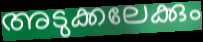
അടുക്കലേക്കും